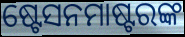
ଷ୍ଟେସନମାଷ୍ଟରଙ୍କ